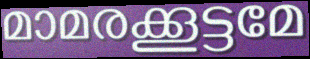
മാമരക്കൂട്ടമേ